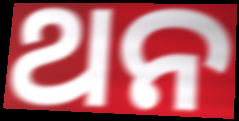
ଥନ